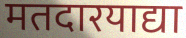
मतदारयाद्या